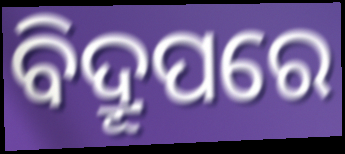
ବିଦ୍ରୂପରେ